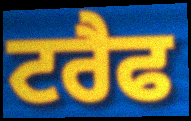
ਟਰੈਫ